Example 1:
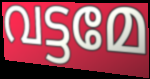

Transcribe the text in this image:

വട്ടമേ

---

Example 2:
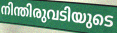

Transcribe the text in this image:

നിന്തിരുവടിയുടെ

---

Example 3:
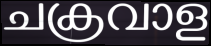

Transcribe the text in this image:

ചക്രവാള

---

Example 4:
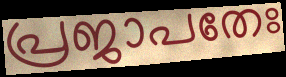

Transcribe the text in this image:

പ്രജാപതേഃ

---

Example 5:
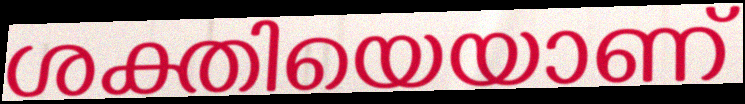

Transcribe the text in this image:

ശക്തിയെയാണ്